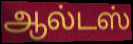
ஆல்டஸ்